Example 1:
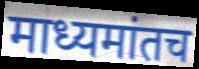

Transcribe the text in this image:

माध्यमांतच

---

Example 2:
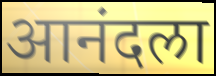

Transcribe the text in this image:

आनंदला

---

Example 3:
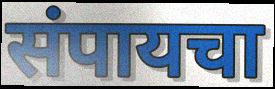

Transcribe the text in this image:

संपायचा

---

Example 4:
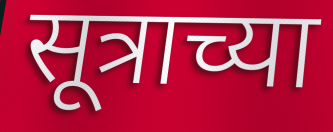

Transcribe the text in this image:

सूत्राच्या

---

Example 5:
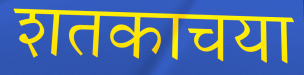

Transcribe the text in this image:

शतकाचया